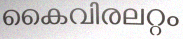
കൈവിരലറ്റം